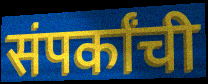
संपर्कांची